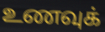
உணவுக்